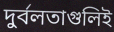
দুর্বলতাগুলিই